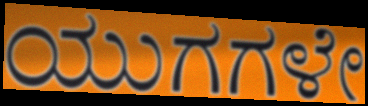
ಯುಗಗಳೇ